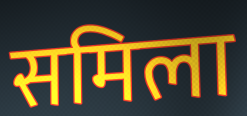
समिला